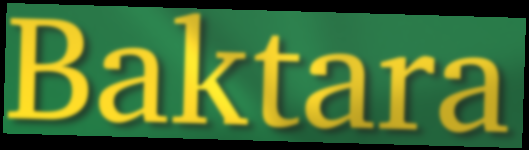
Baktara